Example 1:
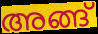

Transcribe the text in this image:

അങ്ങ്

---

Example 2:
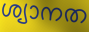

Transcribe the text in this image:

ശ്യാനത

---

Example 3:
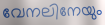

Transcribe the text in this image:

വേനലിനേയും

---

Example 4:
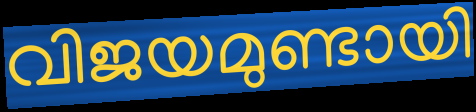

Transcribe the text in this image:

വിജയമുണ്ടായി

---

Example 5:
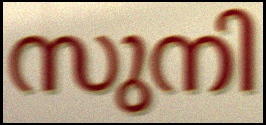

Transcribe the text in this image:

സുനി